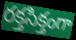
రక్తసిక్తంగా